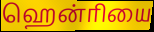
ஹென்ரியை